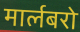
मार्लबरो